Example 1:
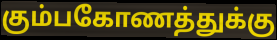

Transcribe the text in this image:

கும்பகோணத்துக்கு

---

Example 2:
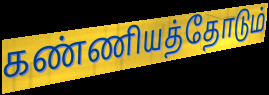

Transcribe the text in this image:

கண்ணியத்தோடும்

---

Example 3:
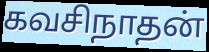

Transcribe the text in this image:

கவசிநாதன்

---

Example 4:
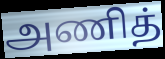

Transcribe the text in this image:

அணித்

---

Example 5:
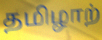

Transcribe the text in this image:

தமிழாற்